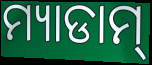
ମ୍ଯାଡାମ୍